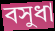
বসুধা